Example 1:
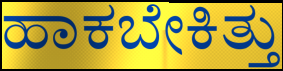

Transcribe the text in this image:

ಹಾಕಬೇಕಿತ್ತು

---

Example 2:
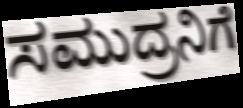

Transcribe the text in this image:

ಸಮುದ್ರನಿಗೆ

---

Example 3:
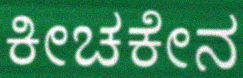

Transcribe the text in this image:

ಕೀಚಕೇನ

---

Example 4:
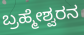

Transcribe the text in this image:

ಬ್ರಹ್ಮೇಶ್ವರನ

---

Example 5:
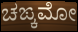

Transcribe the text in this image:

ಚಙ್ಕಮೋ